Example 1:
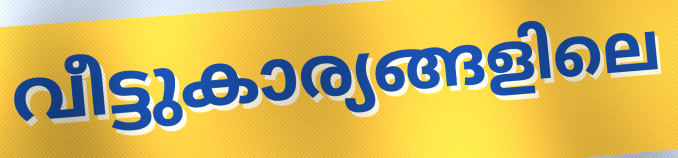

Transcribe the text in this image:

വീട്ടുകാര്യങ്ങളിലെ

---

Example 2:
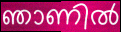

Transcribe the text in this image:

ഞാണിൽ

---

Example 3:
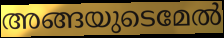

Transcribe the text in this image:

അങ്ങയുടെമേൽ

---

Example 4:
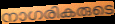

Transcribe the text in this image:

നാഗരികരുടെ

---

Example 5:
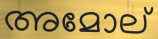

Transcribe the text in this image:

അമോല്